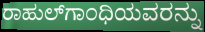
ರಾಹುಲ್‌ಗಾಂಧಿಯವರನ್ನು